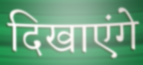
दिखाएंगे